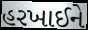
હરખાઈને